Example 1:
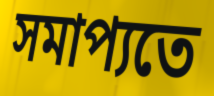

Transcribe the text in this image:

সমাপ্যতে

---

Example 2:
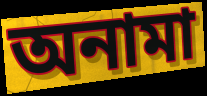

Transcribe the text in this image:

অনামা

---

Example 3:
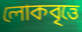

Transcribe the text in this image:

লোকবৃত্তে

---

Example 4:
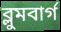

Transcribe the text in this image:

ব্লুমবার্গ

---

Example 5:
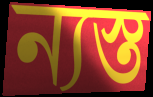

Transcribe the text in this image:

ন্যস্ত